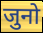
जुनो